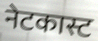
नेटकास्ट